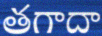
తగాదా